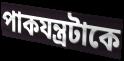
পাকযন্ত্রটাকে